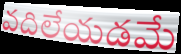
వదిలేయడమే